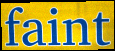
faint